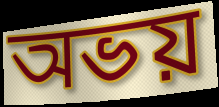
অভয়